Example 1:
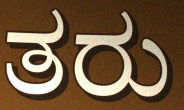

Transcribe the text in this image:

ತರು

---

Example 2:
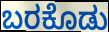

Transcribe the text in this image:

ಬರಕೊಡು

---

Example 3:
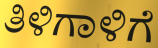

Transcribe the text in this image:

ತಿಳಿಗಾಳಿಗೆ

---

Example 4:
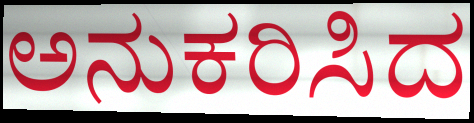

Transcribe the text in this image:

ಅನುಕರಿಸಿದ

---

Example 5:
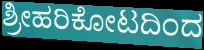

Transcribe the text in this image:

ಶ್ರೀಹರಿಕೋಟದಿಂದ